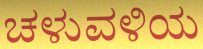
ಚಳುವಳಿಯ